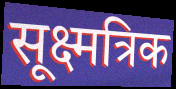
सूक्ष्मत्रिक